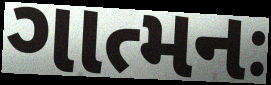
ગાત્મનઃ